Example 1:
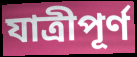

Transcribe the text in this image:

যাত্রীপূর্ণ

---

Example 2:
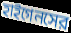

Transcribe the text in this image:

হাইগেনসের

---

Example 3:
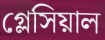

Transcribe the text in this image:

গ্লেসিয়াল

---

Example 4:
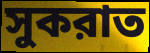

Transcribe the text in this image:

সুকরাত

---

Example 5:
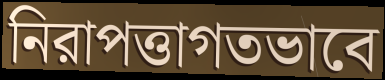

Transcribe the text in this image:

নিরাপত্তাগতভাবে